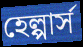
হেল্পার্স